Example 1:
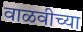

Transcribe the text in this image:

वाळवीच्या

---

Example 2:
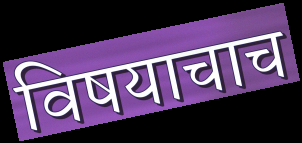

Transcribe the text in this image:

विषयाचाच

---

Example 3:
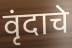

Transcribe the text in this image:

वृंदाचे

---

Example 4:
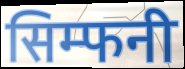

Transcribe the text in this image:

सिम्फनी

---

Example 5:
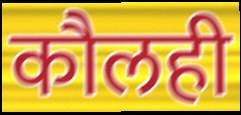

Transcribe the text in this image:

कौलही